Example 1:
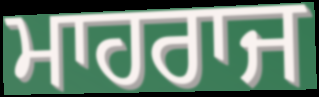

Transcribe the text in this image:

ਮਾਹਰਾਜ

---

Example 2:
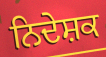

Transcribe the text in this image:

ਨਿਦੇਸ਼ਕ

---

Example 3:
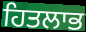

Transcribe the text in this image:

ਹਿਤਲਾਭ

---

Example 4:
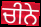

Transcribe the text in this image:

ਚੀਨੇ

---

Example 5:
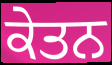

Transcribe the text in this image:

ਕੇਤਨ